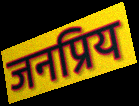
जनप्रिय